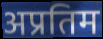
अप्रतिम